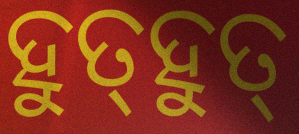
ହୁତ୍‍ହୁତ୍